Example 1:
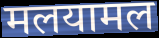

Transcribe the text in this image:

मलयामल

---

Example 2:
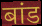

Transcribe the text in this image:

बांड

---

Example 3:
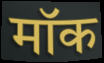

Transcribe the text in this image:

मॉक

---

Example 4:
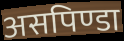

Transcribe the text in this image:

असपिण्डा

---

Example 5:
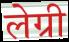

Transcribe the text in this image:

लेग्री